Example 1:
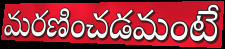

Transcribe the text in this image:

మరణించడమంటే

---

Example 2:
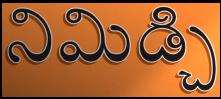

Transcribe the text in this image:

నిమిడ్చి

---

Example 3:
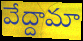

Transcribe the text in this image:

వేద్దామా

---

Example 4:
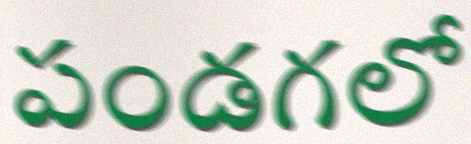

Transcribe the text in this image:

పండగలో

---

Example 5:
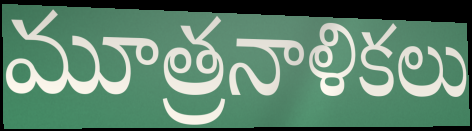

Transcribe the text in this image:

మూత్రనాళికలు